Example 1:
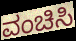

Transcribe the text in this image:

ವಂಚಿಸಿ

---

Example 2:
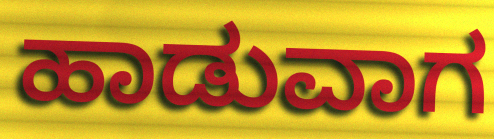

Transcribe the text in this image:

ಹಾಡುವಾಗ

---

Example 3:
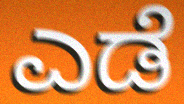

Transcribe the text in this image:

ಎಡೆ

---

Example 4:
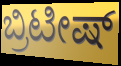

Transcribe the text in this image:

ಬ್ರಿಟೀಷ್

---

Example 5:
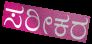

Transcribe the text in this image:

ಸರೀಕರ